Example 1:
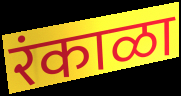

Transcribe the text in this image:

रंकाळा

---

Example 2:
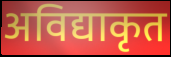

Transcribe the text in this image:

अविद्याकृत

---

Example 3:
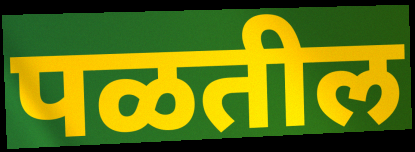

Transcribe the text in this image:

पळतील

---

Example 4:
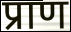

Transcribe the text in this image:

प्राण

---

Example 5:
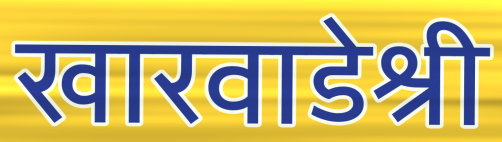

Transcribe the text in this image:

खारवाडेश्री